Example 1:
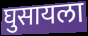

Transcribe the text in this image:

घुसायला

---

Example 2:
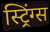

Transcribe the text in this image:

स्ट्रिंग्स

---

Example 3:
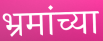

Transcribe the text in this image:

भ्रमांच्या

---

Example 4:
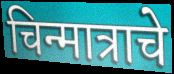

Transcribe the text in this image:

चिन्मात्राचे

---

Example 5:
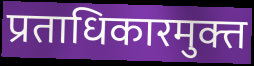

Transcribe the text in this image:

प्रताधिकारमुक्त